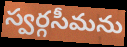
స్వర్గసీమను